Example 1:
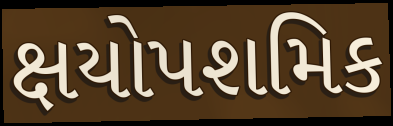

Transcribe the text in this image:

ક્ષયોપશમિક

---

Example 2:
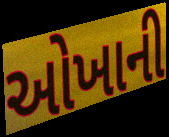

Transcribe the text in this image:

ઓખાની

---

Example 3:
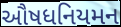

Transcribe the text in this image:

ઔષધનિયમન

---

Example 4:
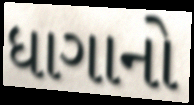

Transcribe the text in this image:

ધાગાનો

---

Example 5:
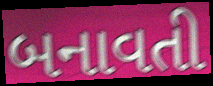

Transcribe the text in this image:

બનાવતી